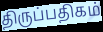
திருப்பதிகம்